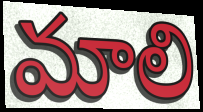
మాలి